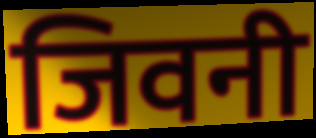
जिवनी